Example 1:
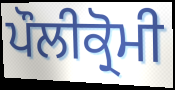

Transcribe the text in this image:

ਪੌਲੀਕ੍ਰੋਮੀ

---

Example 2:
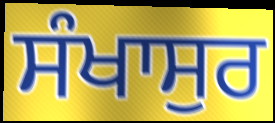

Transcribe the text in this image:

ਸੰਖਾਸੁਰ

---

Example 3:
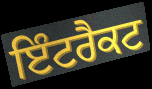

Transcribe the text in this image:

ਇੰਟਰੈਕਟ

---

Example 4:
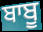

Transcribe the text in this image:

ਬਾਬੂ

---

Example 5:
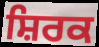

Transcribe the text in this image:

ਸ਼ਿਰਕ